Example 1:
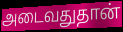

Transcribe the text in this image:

அடைவதுதான்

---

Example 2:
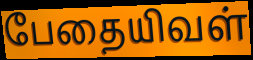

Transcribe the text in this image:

பேதையிவள்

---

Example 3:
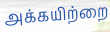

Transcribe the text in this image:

அக்கயிற்றை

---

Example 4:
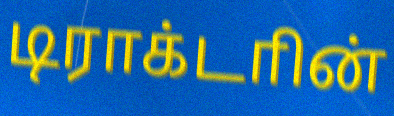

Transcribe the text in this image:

டிராக்டரின்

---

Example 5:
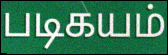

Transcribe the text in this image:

படிகயம்